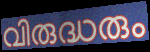
വിരുദ്ധരും